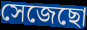
সেজেছো